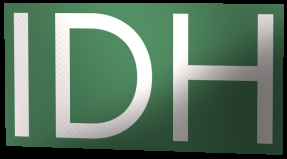
IDH